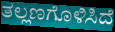
ತಲ್ಲಣಗೊಳಿಸಿದೆ